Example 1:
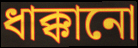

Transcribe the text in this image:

ধাক্কানো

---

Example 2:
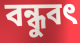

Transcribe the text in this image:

বন্ধুবৎ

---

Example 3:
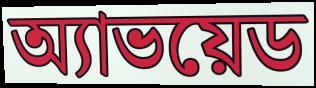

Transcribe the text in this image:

অ্যাভয়েড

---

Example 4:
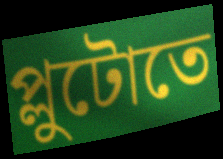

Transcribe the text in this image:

প্লুটোতে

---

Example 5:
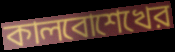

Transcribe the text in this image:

কালবোশেখের